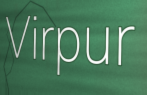
Virpur